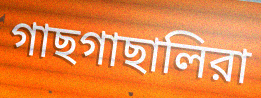
গাছগাছালিরা